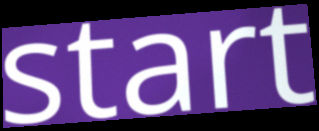
start